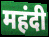
महंदी